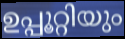
ഉപ്പൂറ്റിയും